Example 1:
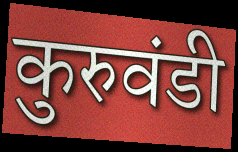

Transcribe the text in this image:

कुरुवंडी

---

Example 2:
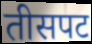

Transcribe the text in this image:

तीसपट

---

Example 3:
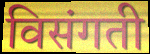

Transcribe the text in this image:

विसंगती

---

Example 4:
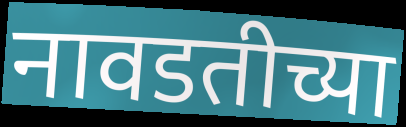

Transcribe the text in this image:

नावडतीच्या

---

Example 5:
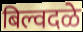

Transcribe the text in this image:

बिल्वदळे